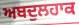
ਅਬਦੁਲਹਾਕ